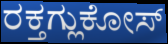
ರಕ್ತಗ್ಲುಕೋಸ್